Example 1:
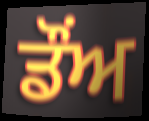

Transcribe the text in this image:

ਡੌਂਅ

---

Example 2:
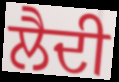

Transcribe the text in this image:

ਲੈਦੀ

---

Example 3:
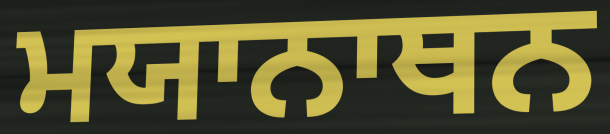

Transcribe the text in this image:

ਮਯਾਨਾਥਨ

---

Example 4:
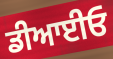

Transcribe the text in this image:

ਡੀਆਈਓ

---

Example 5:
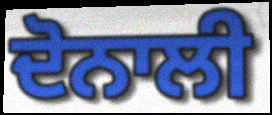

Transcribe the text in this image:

ਦੋਨਾਲੀ